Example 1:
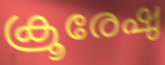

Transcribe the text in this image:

ക്രൂരേഷു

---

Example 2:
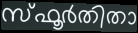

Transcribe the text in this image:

സ്ഫൂർതിതാ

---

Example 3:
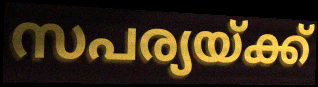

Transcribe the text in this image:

സപര്യയ്ക്ക്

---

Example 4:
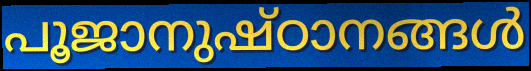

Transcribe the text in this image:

പൂജാനുഷ്ഠാനങ്ങൾ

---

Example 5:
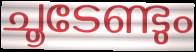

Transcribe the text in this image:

ചൂടേണ്ടും